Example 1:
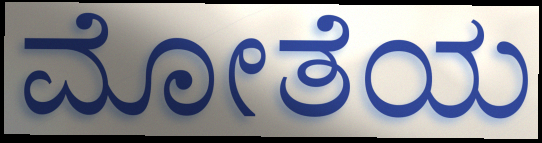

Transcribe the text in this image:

ಮೋತೆಯ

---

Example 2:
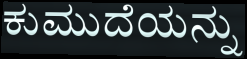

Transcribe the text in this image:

ಕುಮುದೆಯನ್ನು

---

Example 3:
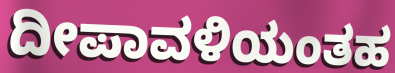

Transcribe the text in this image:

ದೀಪಾವಳಿಯಂತಹ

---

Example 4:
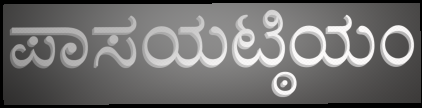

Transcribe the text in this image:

ಪಾಸಯಟ್ಠಿಯಂ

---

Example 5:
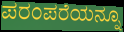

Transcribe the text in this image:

ಪರಂಪರೆಯನ್ನೂ